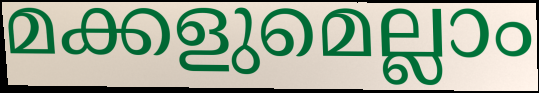
മക്കളുമെല്ലാം